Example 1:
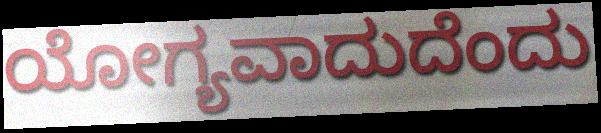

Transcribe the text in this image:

ಯೋಗ್ಯವಾದುದೆಂದು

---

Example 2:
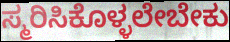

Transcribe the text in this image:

ಸ್ಮರಿಸಿಕೊಳ್ಳಲೇಬೇಕು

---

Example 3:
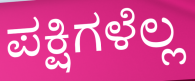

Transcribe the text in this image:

ಪಕ್ಷಿಗಳೆಲ್ಲ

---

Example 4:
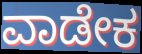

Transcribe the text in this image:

ವಾಡೇಕ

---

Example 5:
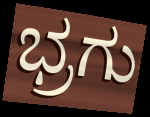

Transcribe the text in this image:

ಭ್ರಗು